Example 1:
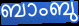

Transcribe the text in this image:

ബാംബു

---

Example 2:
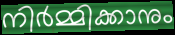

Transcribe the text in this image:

നിർമ്മിക്കാനും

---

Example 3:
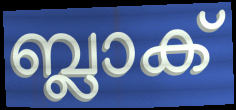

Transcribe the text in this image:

ബ്ലാക്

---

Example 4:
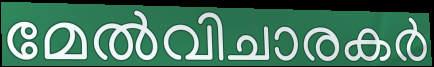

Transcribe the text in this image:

മേൽവിചാരകർ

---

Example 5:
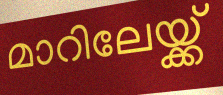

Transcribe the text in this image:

മാറിലേയ്ക്ക്